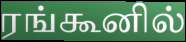
ரங்கூனில்